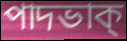
পাদভাক্